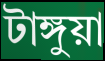
টাঙ্গুয়া